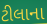
ટીલાના